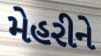
મેહરીને